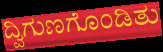
ದ್ವಿಗುಣಗೊಂಡಿತು